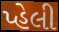
પ્હેલી